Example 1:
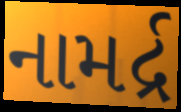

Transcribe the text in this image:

નામર્દ્ર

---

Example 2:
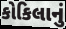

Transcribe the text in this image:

કોકિલાનું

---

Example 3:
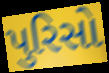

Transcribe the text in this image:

પુરિસો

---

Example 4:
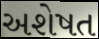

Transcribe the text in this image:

અશેષત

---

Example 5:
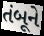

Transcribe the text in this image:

તંબૂને